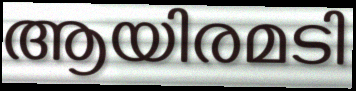
ആയിരമടി